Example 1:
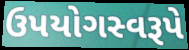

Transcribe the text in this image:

ઉપયોગસ્વરૂપે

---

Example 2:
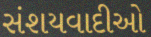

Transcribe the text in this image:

સંશયવાદીઓ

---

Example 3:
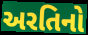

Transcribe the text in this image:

અરતિનો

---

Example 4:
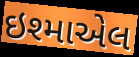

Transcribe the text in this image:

ઇશ્માએલ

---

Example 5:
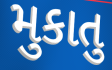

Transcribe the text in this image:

મુકાતુ